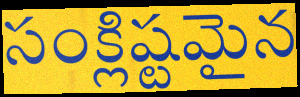
సంక్లిష్టమైన